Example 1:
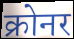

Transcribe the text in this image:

क्रोनर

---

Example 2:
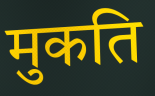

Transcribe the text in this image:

मुकति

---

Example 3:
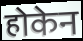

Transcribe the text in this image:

होकेन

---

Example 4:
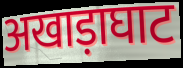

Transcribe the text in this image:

अखाड़ाघाट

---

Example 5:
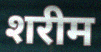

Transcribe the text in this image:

शरीम